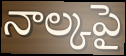
నాల్కపై